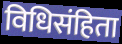
विधिसंहिता